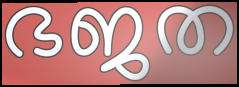
ഭജത